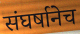
संघर्षानेच